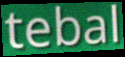
tebal